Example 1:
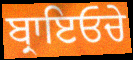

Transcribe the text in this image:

ਬ੍ਰਾਇਓਚੇ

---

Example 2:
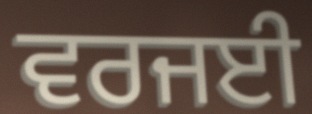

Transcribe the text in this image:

ਵਰਜਈ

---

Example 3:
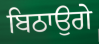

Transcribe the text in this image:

ਬਿਠਾਉਗੇ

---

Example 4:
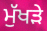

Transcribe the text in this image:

ਮੁੱਖੜੇ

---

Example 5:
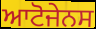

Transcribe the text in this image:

ਆਟੋਜੇਨਸ